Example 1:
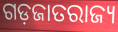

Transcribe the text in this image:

ଗଡ଼ଜାତରାଜ୍ୟ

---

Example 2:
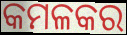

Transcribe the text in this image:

କମଳକର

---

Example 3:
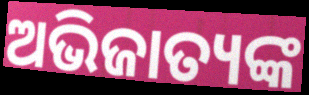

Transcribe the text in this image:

ଅଭିଜାତ୍ୟଙ୍କ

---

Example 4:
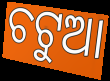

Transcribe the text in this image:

ଚଟୁଆ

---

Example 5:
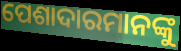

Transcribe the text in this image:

ପେଶାଦାରମାନଙ୍କୁ